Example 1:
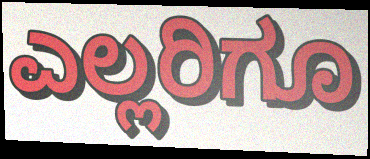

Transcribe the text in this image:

ಎಲ್ಲರಿಗೂ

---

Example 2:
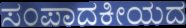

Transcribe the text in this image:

ಸಂಪಾದಕೀಯದ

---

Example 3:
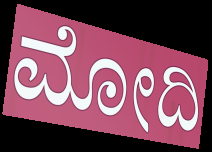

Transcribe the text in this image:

ಮೋದಿ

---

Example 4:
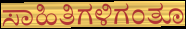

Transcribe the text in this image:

ಸಾಹಿತಿಗಳಿಗಂತೂ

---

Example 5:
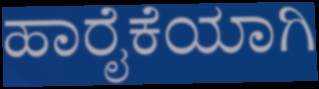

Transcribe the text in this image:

ಹಾರೈಕೆಯಾಗಿ